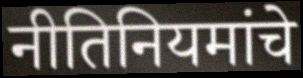
नीतिनियमांचे